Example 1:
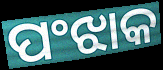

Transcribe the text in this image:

ପଂଝାକ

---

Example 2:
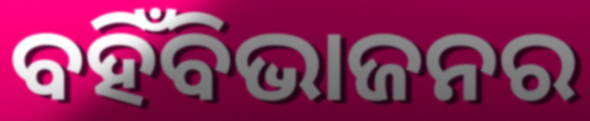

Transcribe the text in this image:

ବହିଁବିଭାଜନର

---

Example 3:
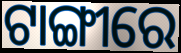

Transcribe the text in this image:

ଟାଙ୍ଗୀରେ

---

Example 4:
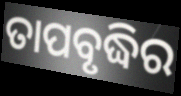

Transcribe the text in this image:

ତାପବୃଦ୍ଧିର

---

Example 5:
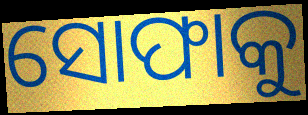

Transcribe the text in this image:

ସୋଫାକୁ